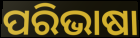
ପରିଭାଷା